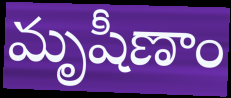
మృషీణాం